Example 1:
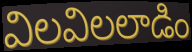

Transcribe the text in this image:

విలవిలలాడిం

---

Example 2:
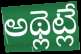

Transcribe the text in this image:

అథ్లెట్లే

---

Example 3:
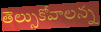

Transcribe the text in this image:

తెల్సుకోవాలన్న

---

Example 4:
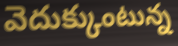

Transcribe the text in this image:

వెదుక్కుంటున్న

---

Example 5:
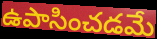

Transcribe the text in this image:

ఉపాసించడమే